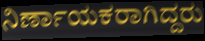
ನಿರ್ಣಾಯಕರಾಗಿದ್ದರು